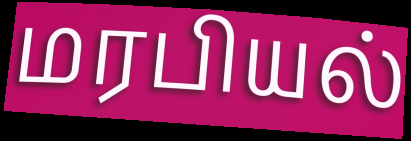
மரபியல்